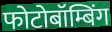
फोटोबॉम्बिंग